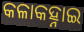
କଳାକହ୍ନାଇ